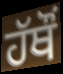
ਹੱਥੌਂ